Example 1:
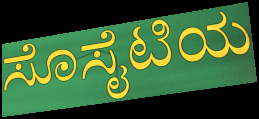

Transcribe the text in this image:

ಸೊಸೈಟಿಯ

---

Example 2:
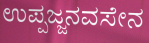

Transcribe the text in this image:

ಉಪ್ಪಜ್ಜನವಸೇನ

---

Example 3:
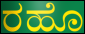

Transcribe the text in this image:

ರಹೊ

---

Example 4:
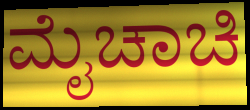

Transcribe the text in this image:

ಮೈಚಾಚಿ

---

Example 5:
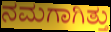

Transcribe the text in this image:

ನಮಗಾಗಿತ್ತು